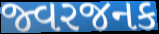
જ્વરજનક